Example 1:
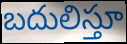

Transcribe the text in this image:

బదులిస్తూ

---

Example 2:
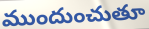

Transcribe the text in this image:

ముందుంచుతూ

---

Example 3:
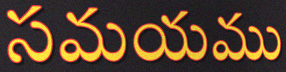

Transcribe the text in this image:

సమయము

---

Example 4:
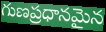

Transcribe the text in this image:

గుణప్రధానమైన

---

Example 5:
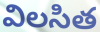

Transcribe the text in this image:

విలసిత